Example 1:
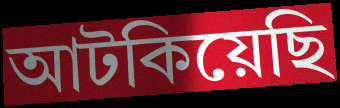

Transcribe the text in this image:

আটকিয়েছি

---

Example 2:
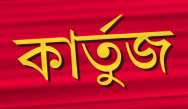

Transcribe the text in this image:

কার্তুজ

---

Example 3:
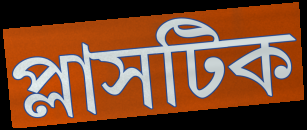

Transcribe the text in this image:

প্লাসটিক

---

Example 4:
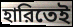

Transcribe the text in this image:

হারিতেই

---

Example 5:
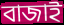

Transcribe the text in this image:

বাজাই